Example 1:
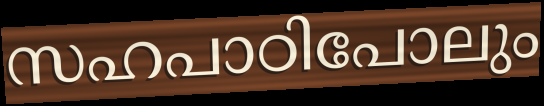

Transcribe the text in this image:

സഹപാഠിപോലും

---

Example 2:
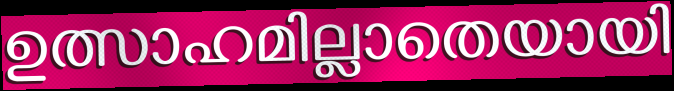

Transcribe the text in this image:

ഉത്സാഹമില്ലാതെയായി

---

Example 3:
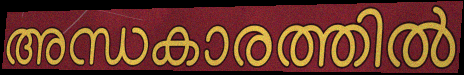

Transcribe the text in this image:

അന്ധകാരത്തിൽ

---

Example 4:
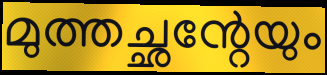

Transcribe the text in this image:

മുത്തച്ഛന്റേയും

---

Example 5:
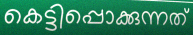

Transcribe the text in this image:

കെട്ടിപ്പൊക്കുന്നത്